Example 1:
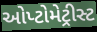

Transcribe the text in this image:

ઓપ્ટોમેટ્રીસ્ટ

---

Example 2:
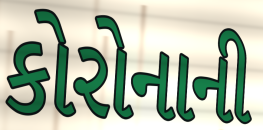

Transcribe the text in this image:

કોરોનાની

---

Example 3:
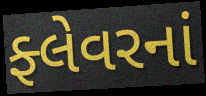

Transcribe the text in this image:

ફ્લેવરનાં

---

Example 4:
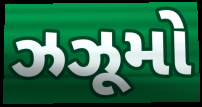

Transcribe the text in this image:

ઝઝૂમો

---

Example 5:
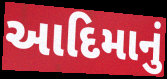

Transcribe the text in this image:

આદિમાનું